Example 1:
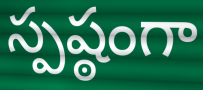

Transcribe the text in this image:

స్పష్ఠంగా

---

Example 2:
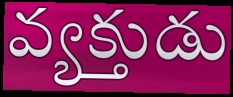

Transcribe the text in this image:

వ్యక్తుడు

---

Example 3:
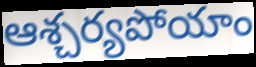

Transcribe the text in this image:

ఆశ్చర్యపోయాం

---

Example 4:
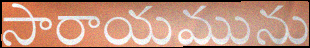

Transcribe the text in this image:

సారాయమును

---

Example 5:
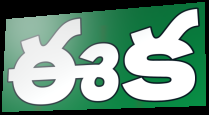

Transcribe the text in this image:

ఈక